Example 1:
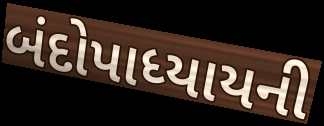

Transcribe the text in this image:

બંદોપાધ્યાયની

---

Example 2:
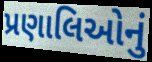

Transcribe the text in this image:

પ્રણાલિઓનું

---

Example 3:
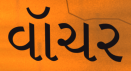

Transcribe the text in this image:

વૉચર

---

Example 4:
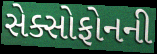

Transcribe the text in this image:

સેક્સોફોનની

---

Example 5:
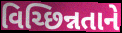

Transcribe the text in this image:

વિચ્છિન્નતાને